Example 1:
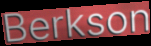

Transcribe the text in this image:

Berkson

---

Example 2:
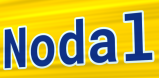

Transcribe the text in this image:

Nodal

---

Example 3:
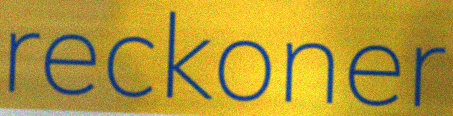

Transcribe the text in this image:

reckoner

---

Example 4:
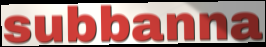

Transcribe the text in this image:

subbanna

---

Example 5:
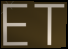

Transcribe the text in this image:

ET